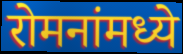
रोमनांमध्ये